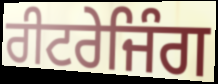
ਰੀਟਰੇਜਿੰਗ